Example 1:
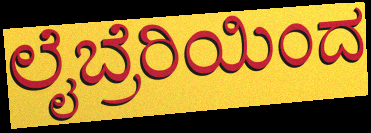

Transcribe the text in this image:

ಲೈಬ್ರೆರಿಯಿಂದ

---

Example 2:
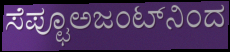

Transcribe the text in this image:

ಸೆಪ್ಟೂಅಜಂಟ್‌ನಿಂದ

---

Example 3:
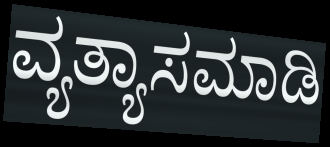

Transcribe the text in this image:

ವ್ಯತ್ಯಾಸಮಾಡಿ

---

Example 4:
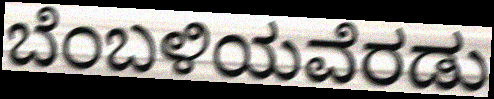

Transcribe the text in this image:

ಬೆಂಬಳಿಯವೆರಡು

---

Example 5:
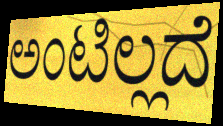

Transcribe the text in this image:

ಅಂಟಿಲ್ಲದೆ